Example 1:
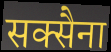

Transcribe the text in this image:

सक्सैना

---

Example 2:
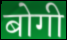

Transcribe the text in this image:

बोगी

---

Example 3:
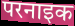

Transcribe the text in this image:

परनाइक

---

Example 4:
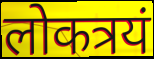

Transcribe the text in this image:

लोकत्रयं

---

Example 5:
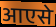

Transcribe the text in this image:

आएसे